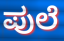
ಪುಲೆ